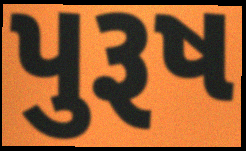
પુરૂષ